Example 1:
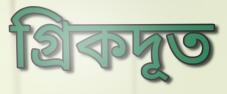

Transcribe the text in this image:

গ্রিকদূত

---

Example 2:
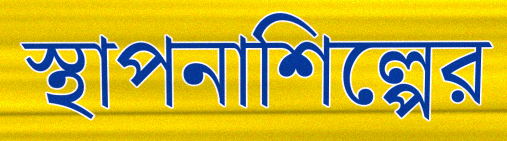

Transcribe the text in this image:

স্থাপনাশিল্পের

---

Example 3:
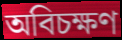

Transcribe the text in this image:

অবিচক্ষণ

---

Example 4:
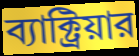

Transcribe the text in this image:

ব্যাক্ট্রিয়ার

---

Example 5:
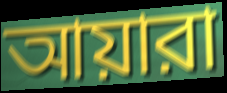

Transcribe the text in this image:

আয়ারা